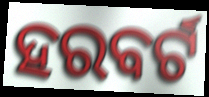
ହରବର୍ଟ